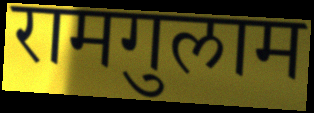
रामगुलाम